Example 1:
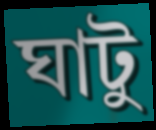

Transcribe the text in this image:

ঘাটু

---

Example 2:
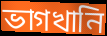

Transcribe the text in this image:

ভাগখানি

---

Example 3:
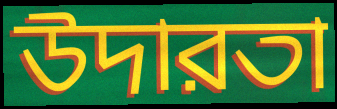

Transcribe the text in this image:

উদারতা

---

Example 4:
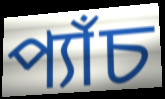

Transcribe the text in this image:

প্যাঁচ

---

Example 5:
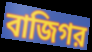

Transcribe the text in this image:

বাজিগর